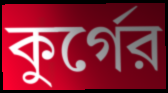
কুর্গের